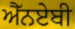
ਐੱਨਏਬੀ